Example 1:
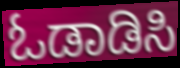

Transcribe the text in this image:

ಓಡಾಡಿಸಿ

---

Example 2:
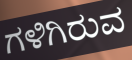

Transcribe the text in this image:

ಗಳಿಗಿರುವ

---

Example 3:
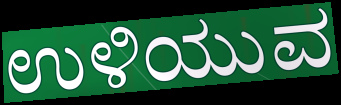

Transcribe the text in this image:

ಉಳಿಯುವ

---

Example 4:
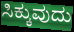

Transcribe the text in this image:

ಸಿಕ್ಕುವುದು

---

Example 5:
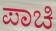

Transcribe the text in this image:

ಪಾಚಿ